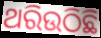
ଥରିଉଠିଛି